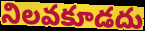
నిలవకూడదు